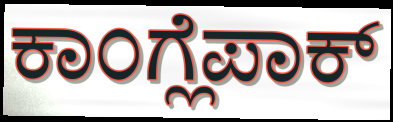
ಕಾಂಗ್ಲೆಪಾಕ್